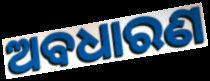
ଅବଧାରଣ